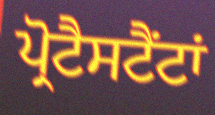
ਪ੍ਰੋਟੈਸਟੈਂਟਾਂ